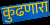
कुढणारा